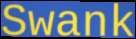
Swank